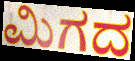
ಮಿಗದ